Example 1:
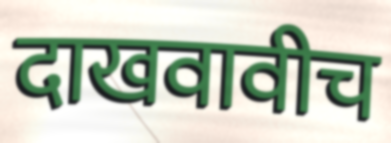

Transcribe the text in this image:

दाखवावीच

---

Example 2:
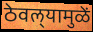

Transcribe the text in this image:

ठेवल्यामुळें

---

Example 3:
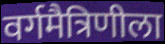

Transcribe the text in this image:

वर्गमैत्रिणीला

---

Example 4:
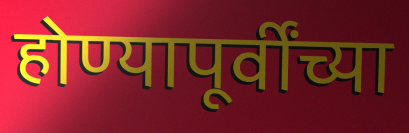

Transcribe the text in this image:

होण्यापूर्वींच्या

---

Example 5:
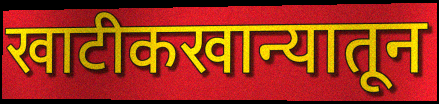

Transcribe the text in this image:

खाटीकखान्यातून